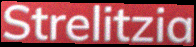
Strelitzia